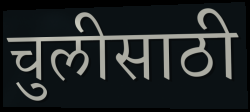
चुलीसाठी